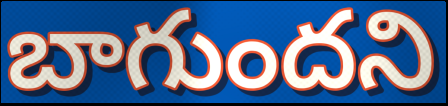
బాగుందని